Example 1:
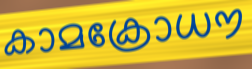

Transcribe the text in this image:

കാമക്രോധൗ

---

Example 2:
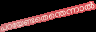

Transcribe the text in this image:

പറയേണ്ടതെന്തെന്നാൽ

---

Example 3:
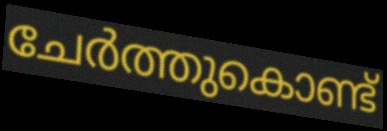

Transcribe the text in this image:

ചേർത്തുകൊണ്ട്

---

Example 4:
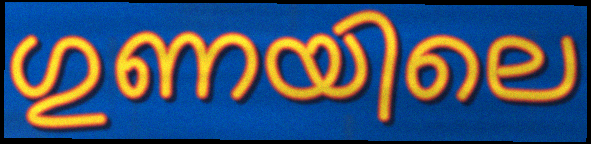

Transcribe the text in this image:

ഗുണയിലെ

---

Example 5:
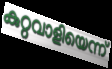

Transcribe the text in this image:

കുറ്റവാളിയെന്ന്